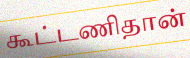
கூட்டணிதான்